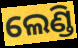
ଲେଣ୍ଡି